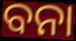
ବନା